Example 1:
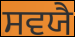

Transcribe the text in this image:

ਸਵਯੈ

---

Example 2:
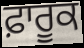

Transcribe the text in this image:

ਫ਼ਾਰੂਕ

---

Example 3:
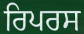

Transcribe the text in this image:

ਰਿਪਰਸ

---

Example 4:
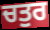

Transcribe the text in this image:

ਚਤੁਰ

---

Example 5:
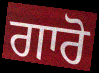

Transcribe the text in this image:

ਗਾਰੋ